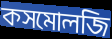
কসমোলজি